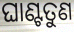
ଘାଣ୍ଟତୁଣ